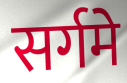
सर्गमे